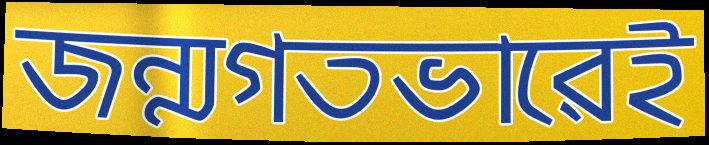
জন্মগতভাৱেই